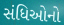
સંધિઓનો